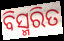
ବିସ୍ମରିତ